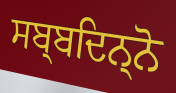
ਸਬ੍ਬਦਿਨ੍ਨੋ